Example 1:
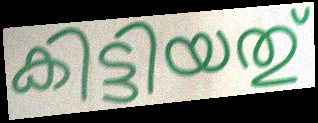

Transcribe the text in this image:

കിട്ടിയതു്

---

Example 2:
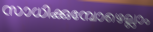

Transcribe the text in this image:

സാധിക്കുമ്പോഴെല്ലാം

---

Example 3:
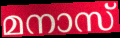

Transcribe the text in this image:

മനാസ്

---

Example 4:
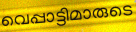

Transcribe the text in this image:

വെപ്പാട്ടിമാരുടെ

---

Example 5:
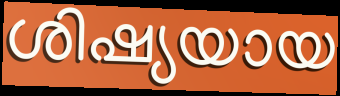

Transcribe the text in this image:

ശിഷ്യയായ